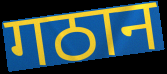
गठान